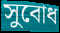
সুবোধ